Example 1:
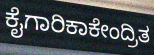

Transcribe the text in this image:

ಕೈಗಾರಿಕಾಕೇಂದ್ರಿತ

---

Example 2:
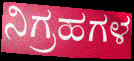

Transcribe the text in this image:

ನಿಗ್ರಹಗಳ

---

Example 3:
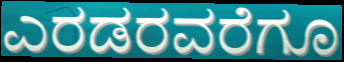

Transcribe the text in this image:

ಎರಡರವರೆಗೂ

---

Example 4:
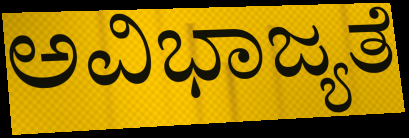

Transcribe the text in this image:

ಅವಿಭಾಜ್ಯತೆ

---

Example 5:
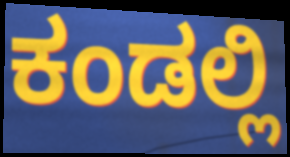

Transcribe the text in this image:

ಕಂಡಲ್ಲಿ